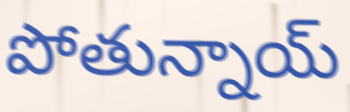
పోతున్నాయ్